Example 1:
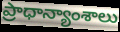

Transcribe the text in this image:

ప్రాధాన్యాంశాలు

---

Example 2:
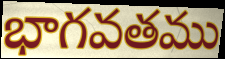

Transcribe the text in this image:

భాగవతము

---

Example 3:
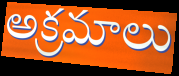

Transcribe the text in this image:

అక్రమాలు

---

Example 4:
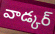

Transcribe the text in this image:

వాడ్కర్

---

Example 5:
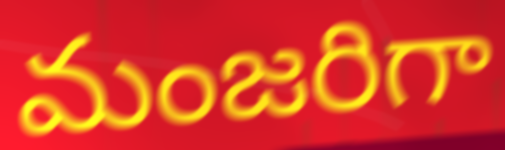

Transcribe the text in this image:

మంజరిగా